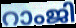
റാംജി